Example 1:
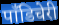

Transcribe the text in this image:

पॉंडिचेरी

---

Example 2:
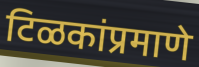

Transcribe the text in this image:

टिळकांप्रमाणे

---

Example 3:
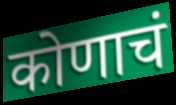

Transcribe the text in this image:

कोणाचं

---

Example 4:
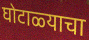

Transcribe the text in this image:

घोटाळ्याचा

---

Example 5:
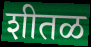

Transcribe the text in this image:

शीतळ